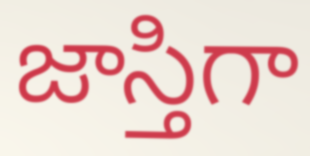
జాస్తిగా